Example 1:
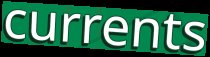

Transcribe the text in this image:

currents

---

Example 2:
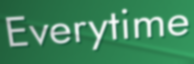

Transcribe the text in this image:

Everytime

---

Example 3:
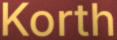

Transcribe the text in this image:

Korth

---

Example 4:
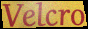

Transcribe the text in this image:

Velcro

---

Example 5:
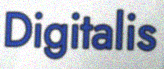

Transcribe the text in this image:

Digitalis